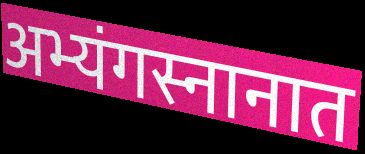
अभ्यंगस्नानात